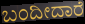
ಬಂದೀದಾರೆ